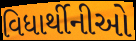
વિધાર્થીનીઓ